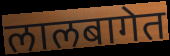
लालबागेत